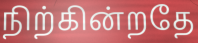
நிற்கின்றதே